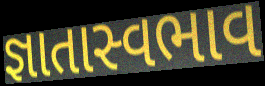
જ્ઞાતાસ્વભાવ